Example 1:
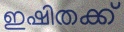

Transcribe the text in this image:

ഇഷിതക്ക്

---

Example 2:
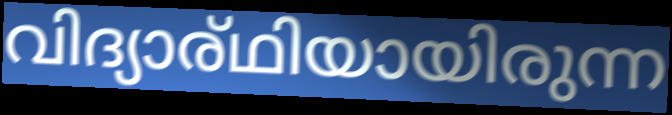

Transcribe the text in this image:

വിദ്യാര്ഥിയായിരുന്ന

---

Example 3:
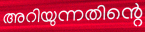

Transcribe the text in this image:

അറിയുന്നതിന്റെ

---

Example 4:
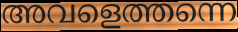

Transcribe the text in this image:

അവളെത്തന്നെ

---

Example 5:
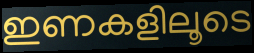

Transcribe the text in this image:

ഇണകളിലൂടെ